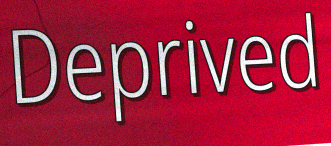
Deprived